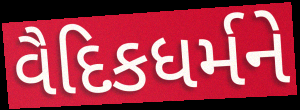
વૈદિકધર્મને